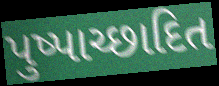
પુષ્પાચ્છાદિત